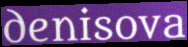
denisova